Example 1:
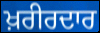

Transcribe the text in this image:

ਖ਼ਰੀਰਦਾਰ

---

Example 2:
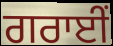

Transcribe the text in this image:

ਗਰਾਈਂ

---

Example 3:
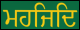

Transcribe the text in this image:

ਮਹਜਿਦਿ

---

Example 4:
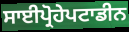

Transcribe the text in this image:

ਸਾਈਪ੍ਰੋਹੇਪਟਾਡੀਨ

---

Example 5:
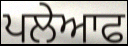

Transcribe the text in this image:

ਪਲੇਆਫ